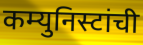
कम्युनिस्टांची